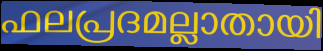
ഫലപ്രദമല്ലാതായി